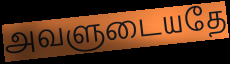
அவளுடையதே